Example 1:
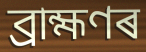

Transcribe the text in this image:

ব্ৰাহ্মণৰ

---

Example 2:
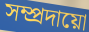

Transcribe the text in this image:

সম্প্ৰদায়ো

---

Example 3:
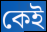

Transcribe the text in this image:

কেই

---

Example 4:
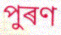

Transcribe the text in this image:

পুৰণ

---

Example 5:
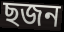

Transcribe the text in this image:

ছজন